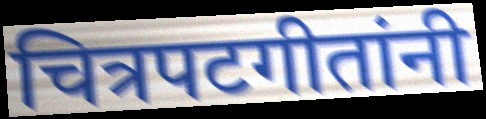
चित्रपटगीतांनी